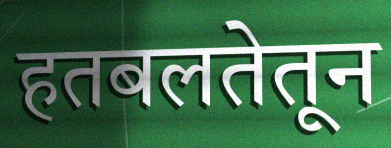
हतबलतेतून